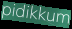
pidikkum